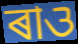
ৰাও